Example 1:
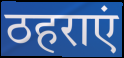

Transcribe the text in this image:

ठहराएं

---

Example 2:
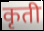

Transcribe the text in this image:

कृती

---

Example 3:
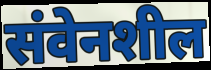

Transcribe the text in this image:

संवेनशील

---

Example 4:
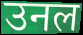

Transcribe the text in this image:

उनल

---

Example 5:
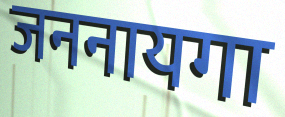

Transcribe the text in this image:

जननायगा